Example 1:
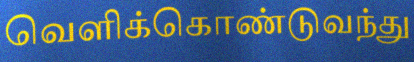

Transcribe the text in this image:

வெளிக்கொண்டுவந்து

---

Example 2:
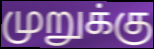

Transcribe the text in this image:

முறுக்கு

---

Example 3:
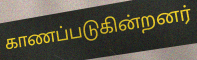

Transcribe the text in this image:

காணப்படுகின்றனர்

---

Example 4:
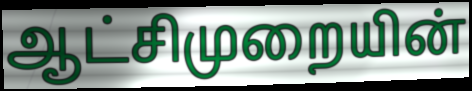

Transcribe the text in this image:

ஆட்சிமுறையின்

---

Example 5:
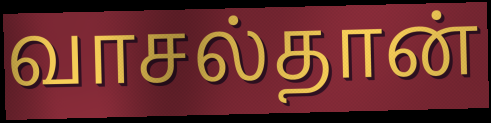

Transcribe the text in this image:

வாசல்தான்